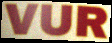
VUR